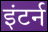
इंटर्न